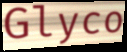
Glyco